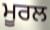
ਮੂਰਲ